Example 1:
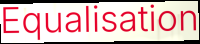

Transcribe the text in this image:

Equalisation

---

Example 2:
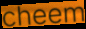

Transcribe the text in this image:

cheem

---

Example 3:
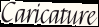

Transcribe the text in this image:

Caricature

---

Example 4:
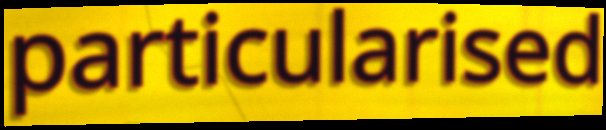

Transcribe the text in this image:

particularised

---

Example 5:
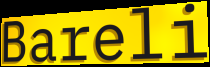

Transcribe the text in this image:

Bareli